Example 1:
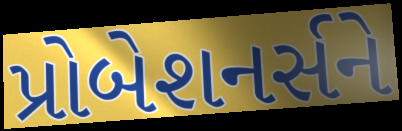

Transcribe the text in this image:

પ્રોબેશનર્સને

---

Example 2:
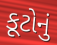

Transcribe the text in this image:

કૂટોનું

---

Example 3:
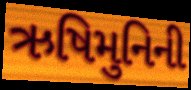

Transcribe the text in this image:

ઋષિમુનિની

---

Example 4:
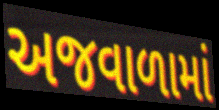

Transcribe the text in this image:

અજવાળામાં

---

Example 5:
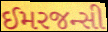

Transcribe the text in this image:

ઈમરજન્સી